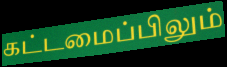
கட்டமைப்பிலும்